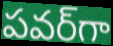
పవర్‌గా